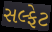
સલ્ફેટ